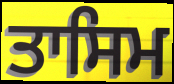
ਤਾਸਿਮ